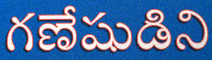
గణేషుడిని